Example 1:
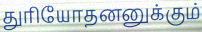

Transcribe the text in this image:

துரியோதனனுக்கும்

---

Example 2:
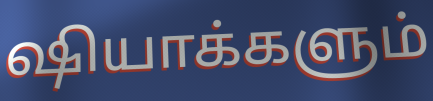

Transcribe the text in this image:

ஷியாக்களும்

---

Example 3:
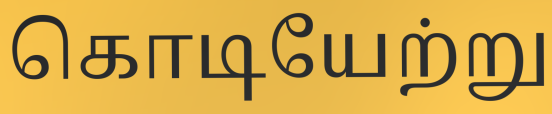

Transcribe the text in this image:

கொடியேற்று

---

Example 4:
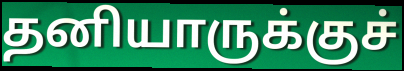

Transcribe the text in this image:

தனியாருக்குச்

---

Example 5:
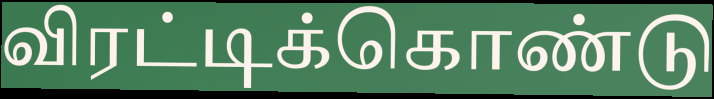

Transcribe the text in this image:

விரட்டிக்கொண்டு